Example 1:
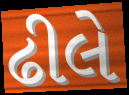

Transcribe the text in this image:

ઢીલે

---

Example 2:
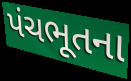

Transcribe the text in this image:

પંચભૂતના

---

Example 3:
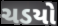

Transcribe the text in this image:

ચડયો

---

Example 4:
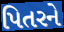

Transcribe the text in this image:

પિતરને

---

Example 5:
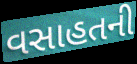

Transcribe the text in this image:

વસાહતની